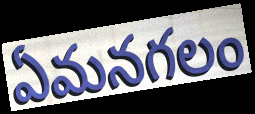
ఏమనగలం